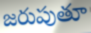
జరుపుతూ